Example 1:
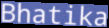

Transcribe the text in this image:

Bhatika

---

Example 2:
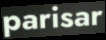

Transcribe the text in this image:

parisar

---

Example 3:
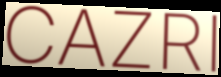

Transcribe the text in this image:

CAZRI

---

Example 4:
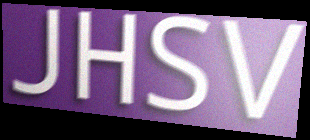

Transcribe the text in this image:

JHSV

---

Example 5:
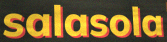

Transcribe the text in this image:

salasola